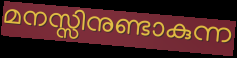
മനസ്സിനുണ്ടാകുന്ന